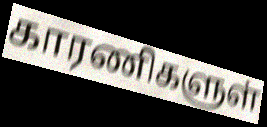
காரணிகளுள்